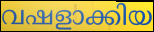
വഷളാക്കിയ